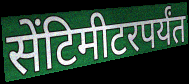
सेंटिमीटरपर्यंत